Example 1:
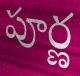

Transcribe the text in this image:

పూర్ణ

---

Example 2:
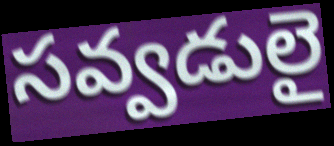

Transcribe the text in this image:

సవ్వడులై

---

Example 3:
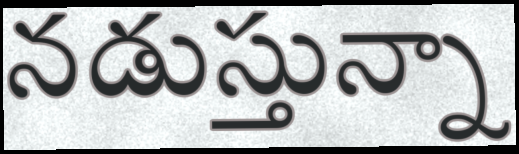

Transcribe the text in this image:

నడుస్తున్నా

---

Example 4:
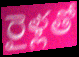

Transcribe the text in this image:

రైళ్లతో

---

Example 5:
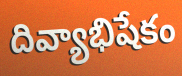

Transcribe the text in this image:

దివ్యాభిషేకం